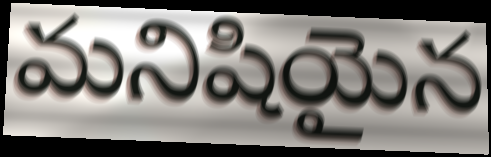
మనిషియైన